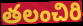
తలంచిరి